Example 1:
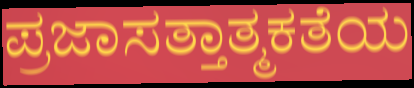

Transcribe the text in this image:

ಪ್ರಜಾಸತ್ತಾತ್ಮಕತೆಯ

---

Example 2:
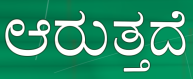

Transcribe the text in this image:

ಆರುತ್ತದೆ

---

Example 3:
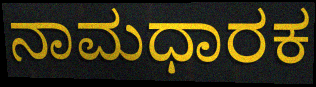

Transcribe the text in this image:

ನಾಮಧಾರಕ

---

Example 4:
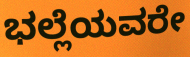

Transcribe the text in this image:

ಭಲ್ಲೆಯವರೇ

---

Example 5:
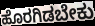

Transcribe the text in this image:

ಹೊರಗಿಡಬೇಕು